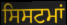
ਸਿਸਟਮਾਂ